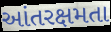
આંતરક્ષમતા